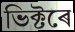
ভিক্টৰে